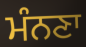
ਮੰਨਣਾ